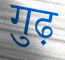
गुढ़